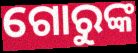
ଗୋରୁଙ୍କ